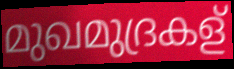
മുഖമുദ്രകള്